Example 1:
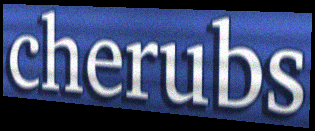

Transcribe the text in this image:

cherubs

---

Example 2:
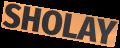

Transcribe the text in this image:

SHOLAY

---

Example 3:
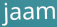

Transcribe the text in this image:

jaam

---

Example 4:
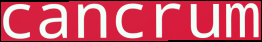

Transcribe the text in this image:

cancrum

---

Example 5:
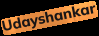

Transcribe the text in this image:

Udayshankar